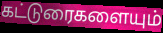
கட்டுரைகளையும்